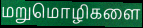
மறுமொழிகளை